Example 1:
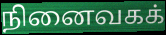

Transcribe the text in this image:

நினைவகக்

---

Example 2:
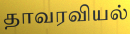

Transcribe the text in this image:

தாவரவியல்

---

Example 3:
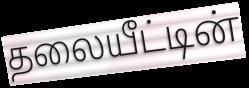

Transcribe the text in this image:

தலையீட்டின்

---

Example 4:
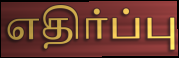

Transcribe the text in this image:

எதிர்ப்பு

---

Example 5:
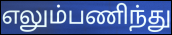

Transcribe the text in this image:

எலும்பணிந்து